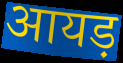
आयड़